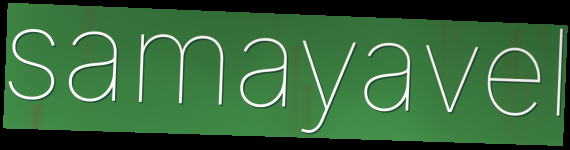
samayavel